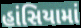
હાંસિયામાં